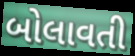
બોલાવતી